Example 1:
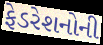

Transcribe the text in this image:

ફેડરેશનોની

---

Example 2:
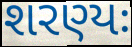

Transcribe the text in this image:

શરણ્યઃ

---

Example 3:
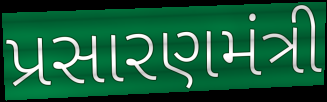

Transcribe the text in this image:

પ્રસારણમંત્રી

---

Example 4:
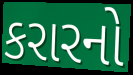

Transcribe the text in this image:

કરારનો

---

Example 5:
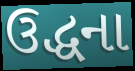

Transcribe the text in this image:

ઉદ્ધના